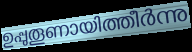
ഉപ്പുതൂണായിത്തീർന്നു